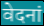
वेदनां